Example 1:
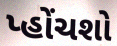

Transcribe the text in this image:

પ્હોંચશો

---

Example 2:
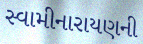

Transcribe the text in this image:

સ્વામીનારાયણની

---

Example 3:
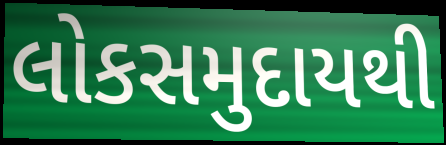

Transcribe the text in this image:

લોકસમુદાયથી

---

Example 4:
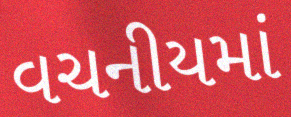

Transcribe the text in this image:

વચનીયમાં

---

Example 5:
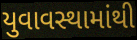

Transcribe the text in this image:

યુવાવસ્થામાંથી